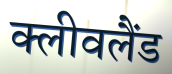
क्‍लीवलैंड